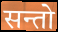
सन्तो